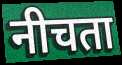
नीचता